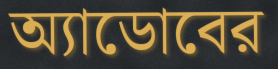
অ্যাডোবের